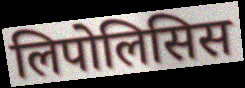
लिपोलिसिस